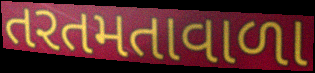
તરતમતાવાળા